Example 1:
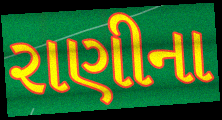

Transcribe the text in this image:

રાણીના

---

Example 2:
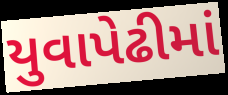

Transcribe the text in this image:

યુવાપેઢીમાં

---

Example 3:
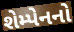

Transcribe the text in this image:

શેમ્પેનનો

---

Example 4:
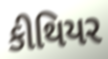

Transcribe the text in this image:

કીથિયર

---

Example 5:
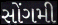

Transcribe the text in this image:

સોંગમી